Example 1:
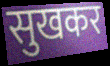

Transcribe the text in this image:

सुखकर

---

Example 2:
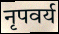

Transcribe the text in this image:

नृपवर्य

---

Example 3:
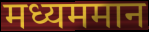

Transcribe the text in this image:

मध्यममान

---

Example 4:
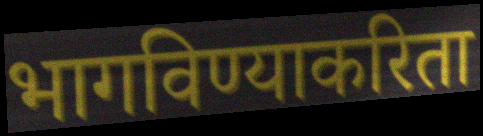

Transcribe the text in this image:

भागविण्याकरिता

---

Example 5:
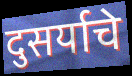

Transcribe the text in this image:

दुसर्याचे